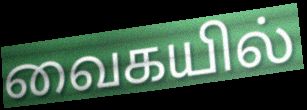
வைகயில்